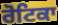
ਰੋਟਿਕਾ